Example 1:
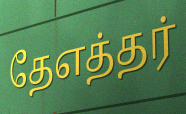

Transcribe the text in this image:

தேஎத்தர்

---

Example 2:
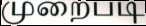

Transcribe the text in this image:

முறைபடி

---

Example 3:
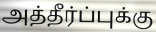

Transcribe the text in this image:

அத்தீர்ப்புக்கு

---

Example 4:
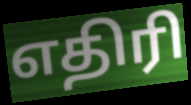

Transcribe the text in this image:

எதிரி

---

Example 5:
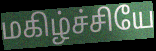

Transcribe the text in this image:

மகிழ்ச்சியே